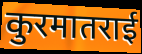
कुरमातराई